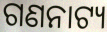
ଗଣନାଟ୍ୟ